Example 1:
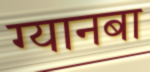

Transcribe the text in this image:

ग्यानबा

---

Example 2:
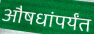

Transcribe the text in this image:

औषधांपर्यंत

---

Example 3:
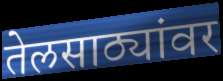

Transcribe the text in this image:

तेलसाठ्यांवर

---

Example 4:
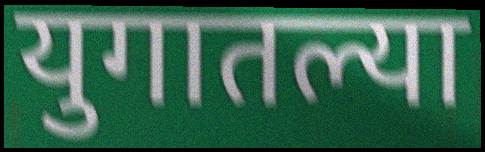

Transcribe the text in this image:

युगातल्या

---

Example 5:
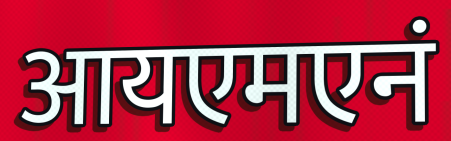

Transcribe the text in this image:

आयएमएनं